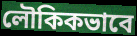
লৌকিকভাবে